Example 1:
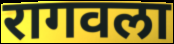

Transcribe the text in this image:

रागवला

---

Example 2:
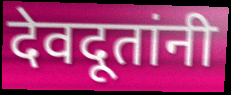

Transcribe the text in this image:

देवदूतांनी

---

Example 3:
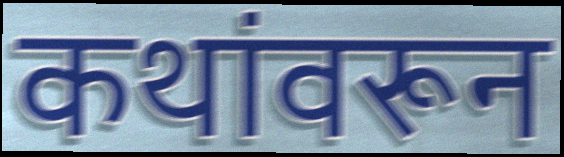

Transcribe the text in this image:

कथांवरून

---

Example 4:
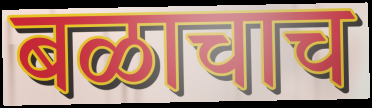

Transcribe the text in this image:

बळाचाच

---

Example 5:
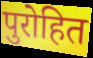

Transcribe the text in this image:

पुरोहित